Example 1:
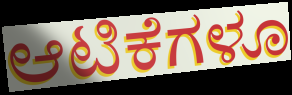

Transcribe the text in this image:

ಆಟಿಕೆಗಳೂ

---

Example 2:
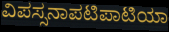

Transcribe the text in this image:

ವಿಪಸ್ಸನಾಪಟಿಪಾಟಿಯಾ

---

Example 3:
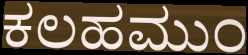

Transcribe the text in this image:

ಕಲಹಮುಂ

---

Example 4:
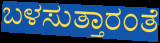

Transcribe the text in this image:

ಬಳಸುತ್ತಾರಂತೆ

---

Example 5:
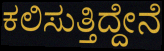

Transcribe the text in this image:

ಕಲಿಸುತ್ತಿದ್ದೇನೆ